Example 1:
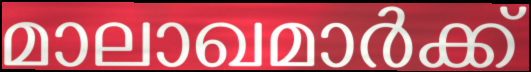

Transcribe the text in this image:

മാലാഖമാർക്ക്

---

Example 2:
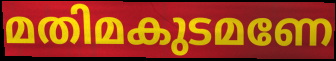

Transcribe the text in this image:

മതിമകുടമണേ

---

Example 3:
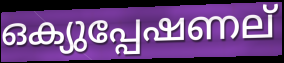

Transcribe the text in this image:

ഒക്യുപ്പേഷണല്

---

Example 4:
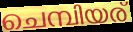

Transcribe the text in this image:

ചെമ്പിയര്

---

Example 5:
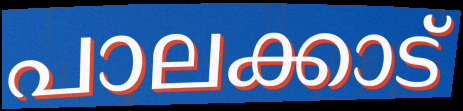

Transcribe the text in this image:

പാലക്കാട്